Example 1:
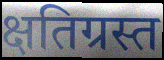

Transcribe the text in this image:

क्षतिग्रस्त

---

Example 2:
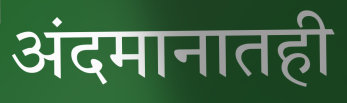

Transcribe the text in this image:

अंदमानातही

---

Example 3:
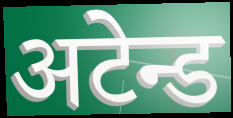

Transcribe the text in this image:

अटेन्ड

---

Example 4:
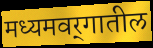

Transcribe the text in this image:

मध्यमवर्गातील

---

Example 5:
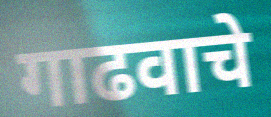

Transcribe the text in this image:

गाढवाचे